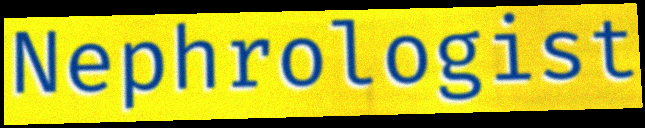
Nephrologist